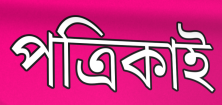
পত্রিকাই